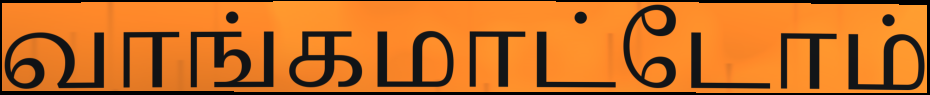
வாங்கமாட்டோம்